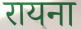
रायना